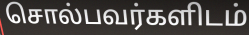
சொல்பவர்களிடம்